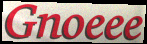
Gnoeee